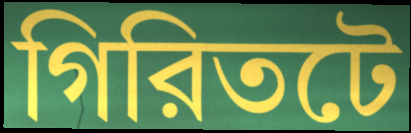
গিরিতটে